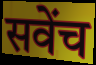
सवेंच